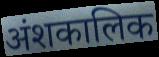
अंशकालिक